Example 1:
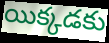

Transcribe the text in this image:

యిక్కడకు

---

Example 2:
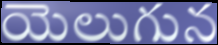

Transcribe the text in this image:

యెలుగున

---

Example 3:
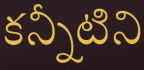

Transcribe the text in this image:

కన్నీటిని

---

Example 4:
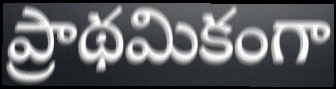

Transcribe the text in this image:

ప్రాథమికంగా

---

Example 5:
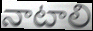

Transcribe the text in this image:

నాటాలి